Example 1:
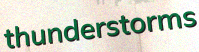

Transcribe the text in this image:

thunderstorms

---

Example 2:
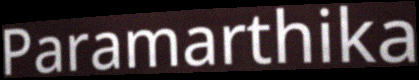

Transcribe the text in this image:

Paramarthika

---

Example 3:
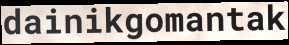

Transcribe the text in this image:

dainikgomantak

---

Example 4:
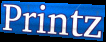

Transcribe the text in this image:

Printz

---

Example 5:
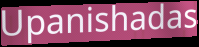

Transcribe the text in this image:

Upanishadas